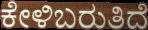
ಕೇಳಿಬರುತಿದೆ